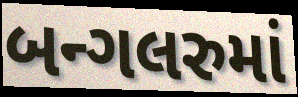
બન્ગલરુમાં